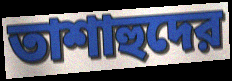
তাশাহুদের